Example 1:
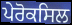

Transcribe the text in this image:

ਪੇਰੋਕਸਿਲ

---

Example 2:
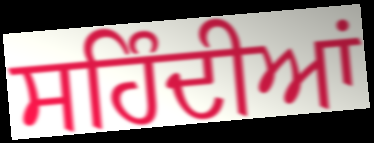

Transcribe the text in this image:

ਸਹਿੰਦੀਆਂ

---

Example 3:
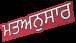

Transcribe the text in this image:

ਮਤਅਨੁਸਾਰ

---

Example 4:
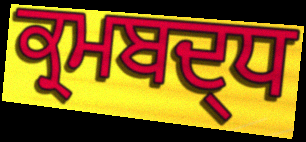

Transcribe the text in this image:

ਕ੍ਰਮਬਦ੍ਧ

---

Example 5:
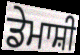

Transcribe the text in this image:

ਡੇਮਾਸ਼ੀ